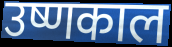
उष्णकाल